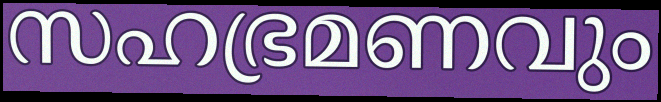
സഹഭ്രമണവും